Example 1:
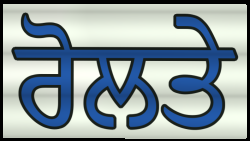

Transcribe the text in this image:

ਰੋਲਤੇ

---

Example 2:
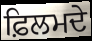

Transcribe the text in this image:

ਫ਼ਿਲਮਦੇ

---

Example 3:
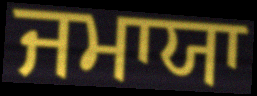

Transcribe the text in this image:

ਜਮਾਯਾ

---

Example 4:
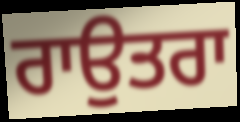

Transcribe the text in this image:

ਰਾਉਤਰਾ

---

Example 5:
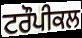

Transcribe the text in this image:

ਟਰੌਪੀਕਲ